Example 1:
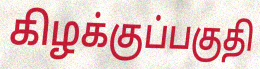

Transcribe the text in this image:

கிழக்குப்பகுதி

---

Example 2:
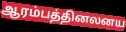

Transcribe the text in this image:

ஆரம்பத்தினலனய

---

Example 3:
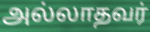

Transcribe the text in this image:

அல்லாதவர்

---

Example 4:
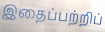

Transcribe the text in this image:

இதைப்பற்றிப்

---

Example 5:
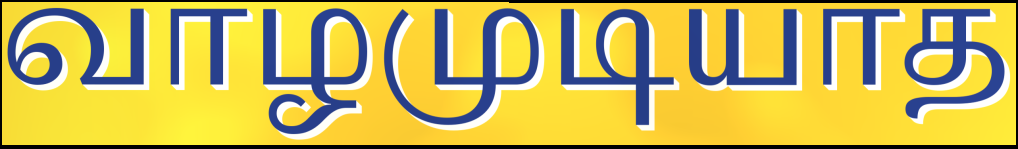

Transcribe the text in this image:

வாழமுடியாத